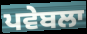
ਪਵੇਬਲਾ